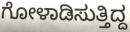
ಗೋಳಾಡಿಸುತ್ತಿದ್ದ